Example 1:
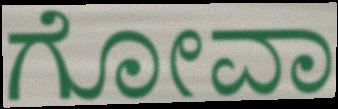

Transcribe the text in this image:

ಗೋವಾ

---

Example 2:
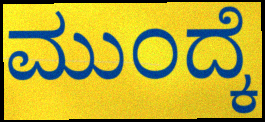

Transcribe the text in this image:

ಮುಂದ್ಕೆ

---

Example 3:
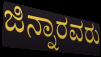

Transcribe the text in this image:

ಜಿನ್ನಾರವರು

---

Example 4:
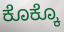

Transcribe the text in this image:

ಕೊಕ್ಕೊ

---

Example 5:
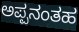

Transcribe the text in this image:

ಅಪ್ಪನಂತಹ